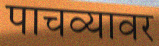
पाचव्यावर